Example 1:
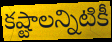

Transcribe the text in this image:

కష్టాలన్నిటికీ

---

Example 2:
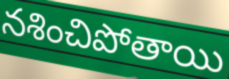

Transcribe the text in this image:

నశించిపోతాయి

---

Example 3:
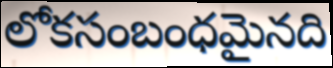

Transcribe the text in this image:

లోకసంబంధమైనది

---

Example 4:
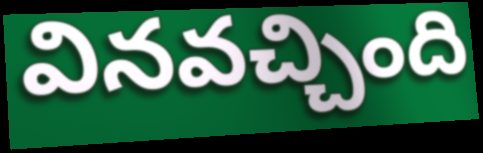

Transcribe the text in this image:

వినవచ్చింది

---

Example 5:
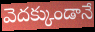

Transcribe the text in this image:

వెదక్కుండానే